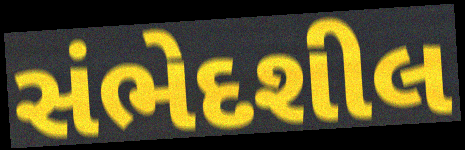
સંભેદશીલ